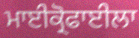
ਮਾਈਕ੍ਰੋਫਾਈਲਾ